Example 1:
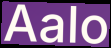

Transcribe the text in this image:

Aalo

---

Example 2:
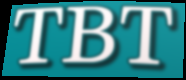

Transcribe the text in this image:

TBT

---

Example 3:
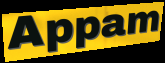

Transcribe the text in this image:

Appam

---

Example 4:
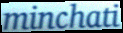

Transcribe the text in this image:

minchati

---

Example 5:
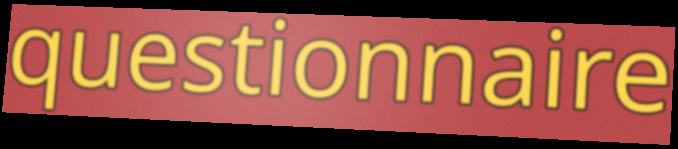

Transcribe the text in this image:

questionnaire